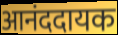
आनंददायक